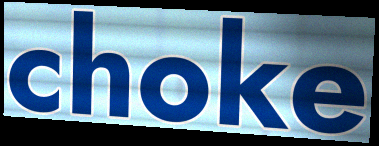
choke